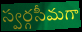
స్వర్గసీమగా